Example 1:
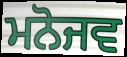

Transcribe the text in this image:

ਮਨੋਜਵ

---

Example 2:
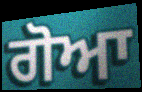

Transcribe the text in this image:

ਗੋਆ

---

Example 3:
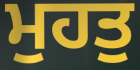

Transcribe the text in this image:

ਮੁਹਤੁ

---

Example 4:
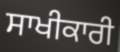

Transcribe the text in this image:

ਸਾਖੀਕਾਰੀ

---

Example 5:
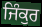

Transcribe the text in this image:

ਜਿੰਕੁਰ